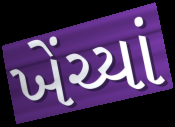
ખેંચ્યાં